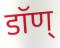
डॉण्